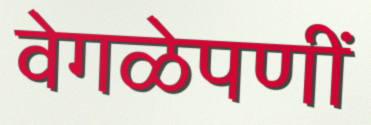
वेगळेपणीं